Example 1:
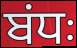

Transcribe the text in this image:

ਬਂਧਃ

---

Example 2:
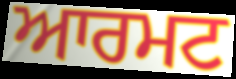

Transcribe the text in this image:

ਆਰਮਟ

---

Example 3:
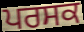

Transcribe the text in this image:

ਪਰਸਕ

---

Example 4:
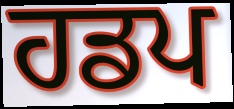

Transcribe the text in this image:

ਹਡਪ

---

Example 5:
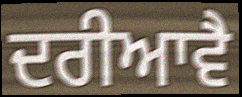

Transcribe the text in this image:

ਦਰੀਆਵੈ